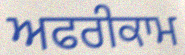
ਅਫਰੀਕਾਮ